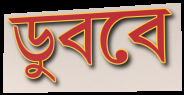
ডুববে